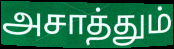
அசாத்தும்